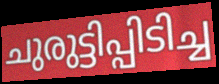
ചുരുട്ടിപ്പിടിച്ച